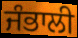
ਜੰਭਾਲੀ